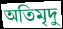
অতিমৃদু